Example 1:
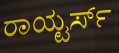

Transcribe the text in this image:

ರಾಯ್ಟರ್ಸ್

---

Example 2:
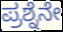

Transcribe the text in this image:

ಪ್ರಶ್ನೆನೇ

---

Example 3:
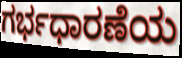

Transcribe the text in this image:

ಗರ್ಭಧಾರಣೆಯ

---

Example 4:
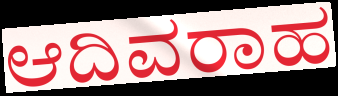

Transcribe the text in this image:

ಆದಿವರಾಹ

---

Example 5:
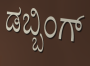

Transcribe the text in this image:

ಡಬ್ಬಿಂಗ್